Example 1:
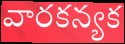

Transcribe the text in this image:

వారకన్యక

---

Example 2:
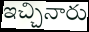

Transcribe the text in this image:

ఇచ్చినారు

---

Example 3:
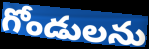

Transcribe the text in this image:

గోండులను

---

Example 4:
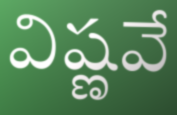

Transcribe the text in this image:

విష్ణవే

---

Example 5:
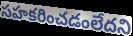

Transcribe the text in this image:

సహకరించడంలేదని